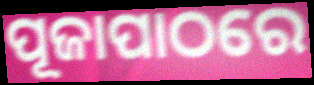
ପୂଜାପାଠରେ